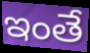
ఇంతే